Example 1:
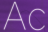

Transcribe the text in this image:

Ac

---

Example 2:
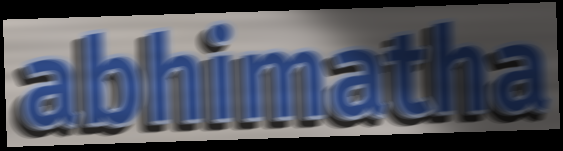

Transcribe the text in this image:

abhimatha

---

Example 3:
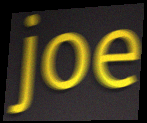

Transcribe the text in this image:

joe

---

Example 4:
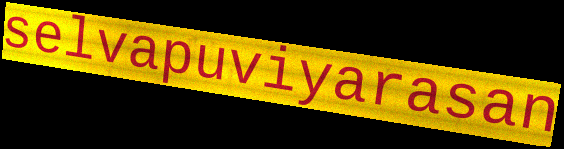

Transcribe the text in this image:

selvapuviyarasan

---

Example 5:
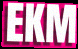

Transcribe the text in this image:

EKM